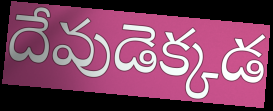
దేవుడెక్కడ